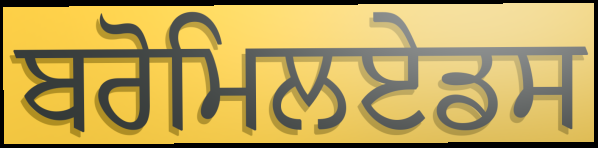
ਬਰੋਮਿਲਏਡਸ